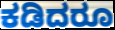
ಕಡಿದರೂ